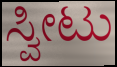
ಸ್ವೀಟು